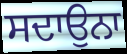
ਸਦਾਉਨਾ